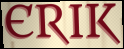
ERIK